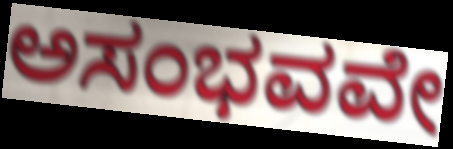
ಅಸಂಭವವೇ